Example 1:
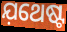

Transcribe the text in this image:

ଯ଼ଥେଷ୍ଟ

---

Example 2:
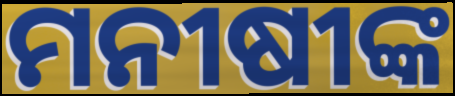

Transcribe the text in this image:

ମନୀଷୀଙ୍କ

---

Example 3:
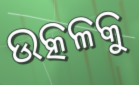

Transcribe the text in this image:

ଉତ୍କଳକୁ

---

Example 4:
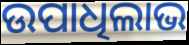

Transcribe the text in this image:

ଉପାଧିଲାଭ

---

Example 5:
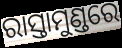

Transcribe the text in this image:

ରାସ୍ତାମୁଣ୍ଡରେ